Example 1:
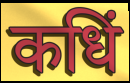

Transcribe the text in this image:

कधिं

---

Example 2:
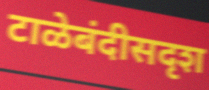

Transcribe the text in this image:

टाळेबंदीसदृश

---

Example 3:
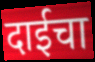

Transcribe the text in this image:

दाईचा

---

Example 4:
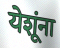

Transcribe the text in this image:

येशूंना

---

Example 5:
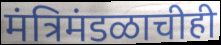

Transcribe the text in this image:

मंत्रिमंडळाचीही